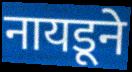
नायडूने